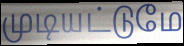
முடியட்டுமே